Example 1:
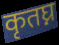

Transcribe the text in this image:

कृतघ्न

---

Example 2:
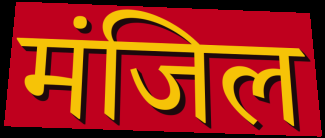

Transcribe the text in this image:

मंजिल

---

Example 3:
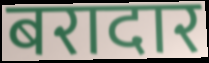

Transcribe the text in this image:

बरादार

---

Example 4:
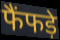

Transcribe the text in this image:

फैंफड़े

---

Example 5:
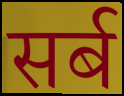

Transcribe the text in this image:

सर्ब